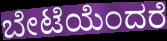
ಬೇಟೆಯೆಂದರೆ